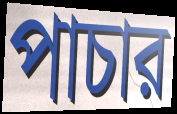
পাচার